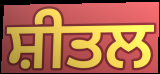
ਸ਼ੀਤਲ